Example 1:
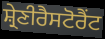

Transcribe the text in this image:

ਸ਼੍ਰੇਣੀਰੈਸਟੋਰੈਂਟ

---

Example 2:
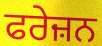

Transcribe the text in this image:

ਫਰੇਜ਼ਨ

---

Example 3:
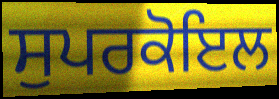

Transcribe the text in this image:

ਸੁਪਰਕੋਇਲ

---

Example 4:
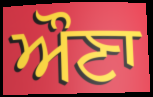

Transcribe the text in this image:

ਔਣਾ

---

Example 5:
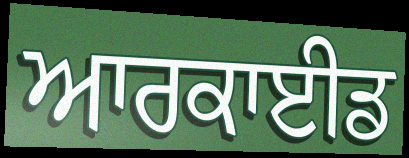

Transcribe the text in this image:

ਆਰਕਾਈਡ